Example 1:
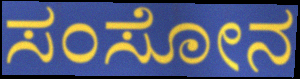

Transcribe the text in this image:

ಸಂಸೋನ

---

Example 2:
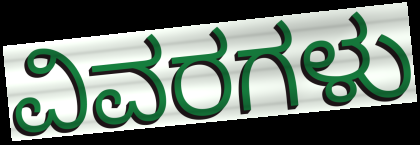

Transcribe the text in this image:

ವಿವರಗಳು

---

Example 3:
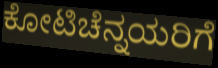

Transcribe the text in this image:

ಕೋಟಿಚೆನ್ನಯರಿಗೆ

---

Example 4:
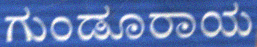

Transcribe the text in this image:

ಗುಂಡೂರಾಯ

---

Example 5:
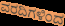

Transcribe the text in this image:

ವರದಿಗಳಿಂದ